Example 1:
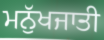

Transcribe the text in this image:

ਮਨੁੱਖਜਾਤੀ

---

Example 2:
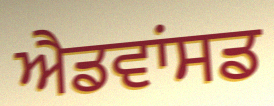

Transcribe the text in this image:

ਐਡਵਾਂਸਡ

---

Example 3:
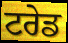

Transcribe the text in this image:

ਟਰੇਡ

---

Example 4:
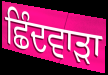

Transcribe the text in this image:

ਛਿੰਦਵਾੜਾ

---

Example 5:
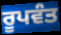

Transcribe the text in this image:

ਰੂਪਵੰਤ